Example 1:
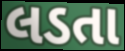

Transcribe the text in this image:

લડતા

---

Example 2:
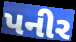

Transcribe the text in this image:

પનીર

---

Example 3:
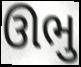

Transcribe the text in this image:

ઊભુ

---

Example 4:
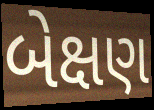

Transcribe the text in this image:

બેક્ષણ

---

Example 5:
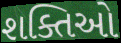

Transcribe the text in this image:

શક્તિઓ